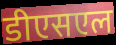
डीएसएल